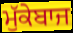
ਮੁੱਕੇਬਾਜ